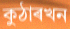
কুঠাৰখন